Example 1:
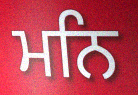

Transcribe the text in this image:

ਮਨਿ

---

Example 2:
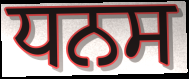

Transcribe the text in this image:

ਧਨਸ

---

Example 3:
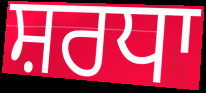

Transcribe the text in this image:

ਸ਼ਰਧਾ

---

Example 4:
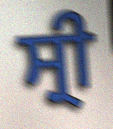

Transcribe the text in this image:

ਸ੍ਰੀ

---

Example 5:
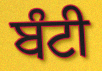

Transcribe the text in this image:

ਬੰਟੀ